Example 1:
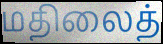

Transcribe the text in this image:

மதிலைத்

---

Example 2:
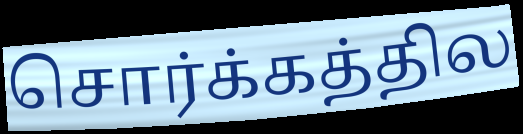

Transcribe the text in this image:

சொர்க்கத்தில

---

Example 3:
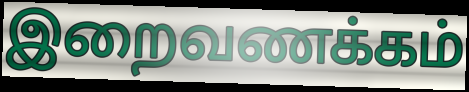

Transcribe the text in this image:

இறைவணக்கம்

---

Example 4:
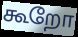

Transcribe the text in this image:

கூறோ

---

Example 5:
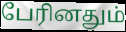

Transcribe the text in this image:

பேரினதும்